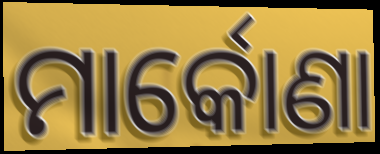
ମାର୍କୋଣା